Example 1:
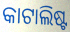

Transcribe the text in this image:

କାଟାଲିଷ୍ଟ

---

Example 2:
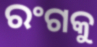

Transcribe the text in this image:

ରଂଗକୁ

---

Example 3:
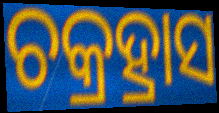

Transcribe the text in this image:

ଚକ୍ରହ୍ରାସ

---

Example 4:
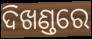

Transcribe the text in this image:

ଦିଖଣ୍ଡରେ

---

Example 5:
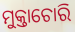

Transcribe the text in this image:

ମୁକ୍ତାଚୋରି